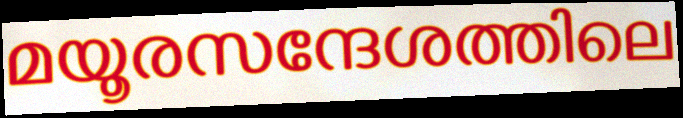
മയൂരസന്ദേശത്തിലെ